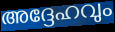
അദ്ദേഹവും